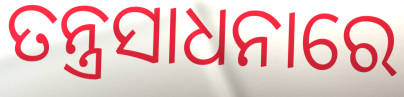
ତନ୍ତ୍ରସାଧନାରେ